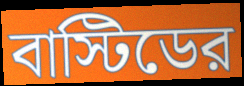
বাস্টিডের